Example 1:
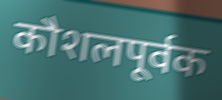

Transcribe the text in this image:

कौशलपूर्वक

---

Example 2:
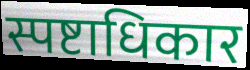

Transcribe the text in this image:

स्पष्टाधिकार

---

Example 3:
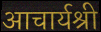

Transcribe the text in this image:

आचार्यश्री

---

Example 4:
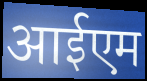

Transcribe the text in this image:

आईएम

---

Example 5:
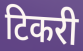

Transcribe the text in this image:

टिकरी